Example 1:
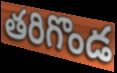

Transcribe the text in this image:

తరిగొండ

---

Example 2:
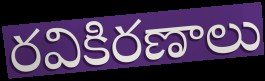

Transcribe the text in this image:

రవికిరణాలు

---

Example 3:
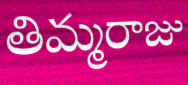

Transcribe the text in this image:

తిమ్మరాజు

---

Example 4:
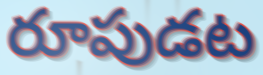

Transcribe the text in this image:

రూపుడట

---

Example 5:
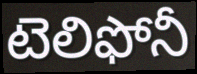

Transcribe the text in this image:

టెలిఫోనీ